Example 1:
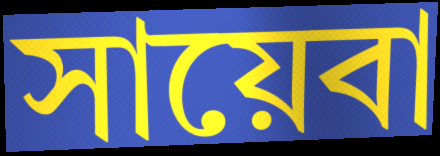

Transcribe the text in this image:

সায়েবা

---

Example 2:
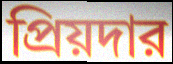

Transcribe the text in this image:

প্রিয়দার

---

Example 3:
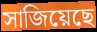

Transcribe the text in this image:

সাজিয়েছে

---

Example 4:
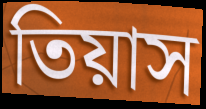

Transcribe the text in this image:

তিয়াস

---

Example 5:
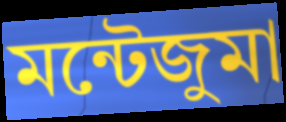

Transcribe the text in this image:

মন্টেজুমা